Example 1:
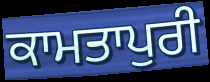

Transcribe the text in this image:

ਕਾਮਤਾਪੁਰੀ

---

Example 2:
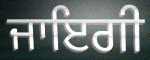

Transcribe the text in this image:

ਜਾਇਗੀ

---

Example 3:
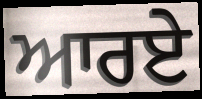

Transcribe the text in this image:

ਆਰਏ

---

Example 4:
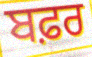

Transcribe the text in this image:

ਬਫ਼ਰ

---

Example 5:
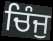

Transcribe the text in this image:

ਚਿੰਜੁ